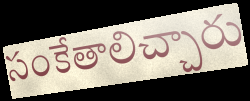
సంకేతాలిచ్చారు